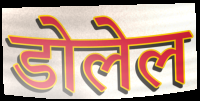
डोलेल